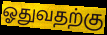
ஓதுவதற்கு